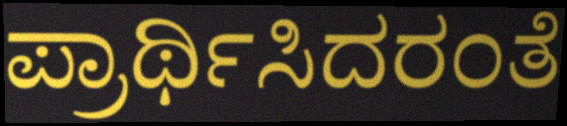
ಪ್ರಾರ್ಥಿಸಿದರಂತೆ